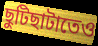
ছুটিছাটাতেও